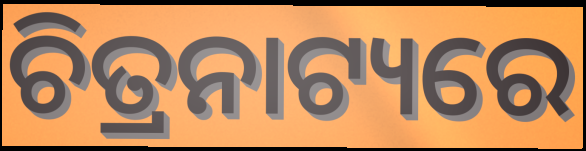
ଚିତ୍ରନାଟ୍ୟରେ